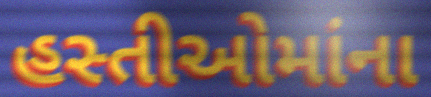
હસ્તીઓમાંના